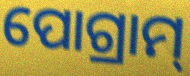
ପୋଗ୍ରାମ୍